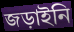
জড়াইনি